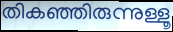
തികഞ്ഞിരുന്നുള്ളൂ